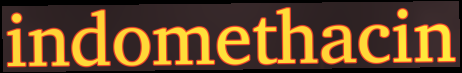
indomethacin